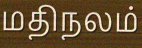
மதிநலம்